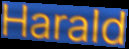
Harald